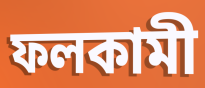
ফলকামী